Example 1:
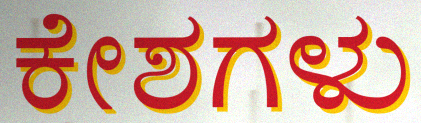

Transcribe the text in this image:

ಕೇಶಗಳು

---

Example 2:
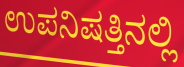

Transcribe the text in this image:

ಉಪನಿಷತ್ತಿನಲ್ಲಿ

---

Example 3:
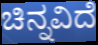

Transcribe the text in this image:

ಚಿನ್ನವಿದೆ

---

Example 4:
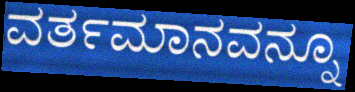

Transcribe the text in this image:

ವರ್ತಮಾನವನ್ನೂ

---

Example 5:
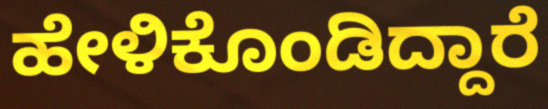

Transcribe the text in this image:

ಹೇಳಿಕೊಂಡಿದ್ದಾರೆ